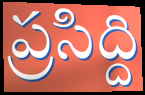
ప్రసిద్ది